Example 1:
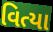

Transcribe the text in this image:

વિત્યા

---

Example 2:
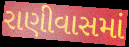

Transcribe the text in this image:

રાણીવાસમાં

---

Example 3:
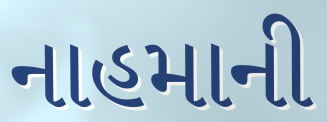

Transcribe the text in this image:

નાહમાની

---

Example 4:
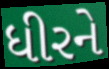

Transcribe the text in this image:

ધીરને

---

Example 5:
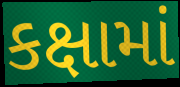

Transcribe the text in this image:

કક્ષામાં